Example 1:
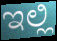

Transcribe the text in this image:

ಇಲ್ಲಿ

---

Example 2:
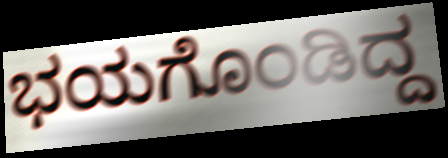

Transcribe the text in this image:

ಭಯಗೊಂಡಿದ್ದ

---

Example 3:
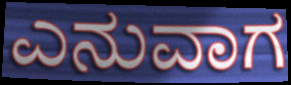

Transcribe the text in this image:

ಎನುವಾಗ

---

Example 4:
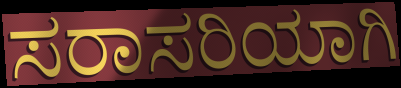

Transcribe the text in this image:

ಸರಾಸರಿಯಾಗಿ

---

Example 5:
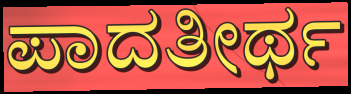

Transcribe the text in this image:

ಪಾದತೀರ್ಥ